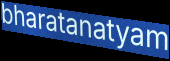
bharatanatyam